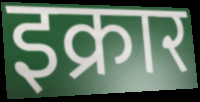
इक्रार